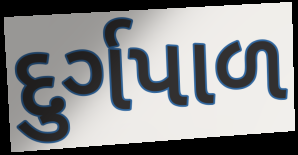
દુર્ગપાળ